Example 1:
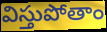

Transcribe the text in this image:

విస్తుపోతాం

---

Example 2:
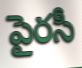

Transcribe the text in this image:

పైరసీ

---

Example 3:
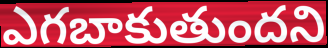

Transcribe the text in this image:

ఎగబాకుతుందని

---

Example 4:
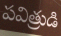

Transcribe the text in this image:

పవిత్రుడి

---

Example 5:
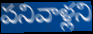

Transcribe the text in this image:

పనివాళ్లని